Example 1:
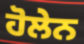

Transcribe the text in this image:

ਹੋਲੇਨ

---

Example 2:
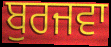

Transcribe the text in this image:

ਬੁਰਜਵਾ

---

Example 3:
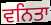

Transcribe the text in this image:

ਵਨਿਤਾ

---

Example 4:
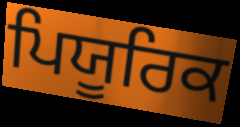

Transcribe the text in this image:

ਪਿਯੂਰਿਕ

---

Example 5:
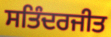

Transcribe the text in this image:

ਸਤਿੰਦਰਜੀਤ